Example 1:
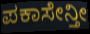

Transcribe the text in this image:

ಪಕಾಸೇನ್ತೀ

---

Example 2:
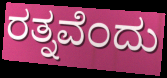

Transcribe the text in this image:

ರತ್ನವೆಂದು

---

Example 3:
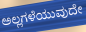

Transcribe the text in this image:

ಅಲ್ಲಗಳೆಯುವುದೇ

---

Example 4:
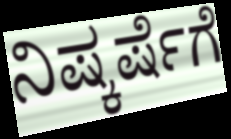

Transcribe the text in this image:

ನಿಷ್ಕರ್ಷೆಗೆ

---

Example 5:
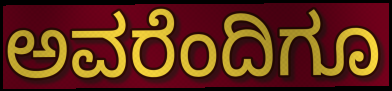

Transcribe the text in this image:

ಅವರೆಂದಿಗೂ